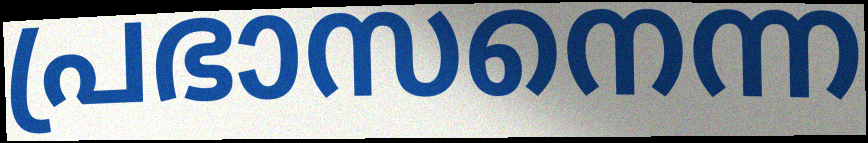
പ്രഭാസനെന്ന